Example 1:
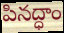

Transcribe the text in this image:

పినద్ధాం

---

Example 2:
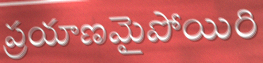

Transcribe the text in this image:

ప్రయాణమైపోయిరి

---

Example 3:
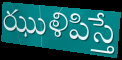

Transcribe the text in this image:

ఝుళిపిస్తే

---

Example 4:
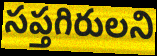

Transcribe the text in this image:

సప్తగిరులని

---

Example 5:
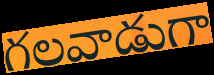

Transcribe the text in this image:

గలవాడుగా